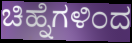
ಚಿಹ್ನೆಗಳಿಂದ